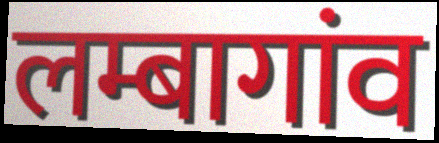
लम्बागांव